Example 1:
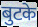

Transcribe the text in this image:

बुटके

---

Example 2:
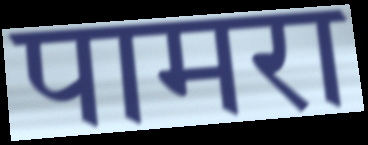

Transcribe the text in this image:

पामरा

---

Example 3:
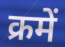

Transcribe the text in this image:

क्रमें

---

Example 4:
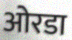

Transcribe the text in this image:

ओरडा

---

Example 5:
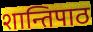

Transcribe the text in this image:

शान्तिपाठ